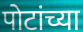
पोटांच्या